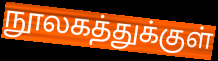
நூலகத்துக்குள்